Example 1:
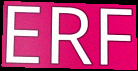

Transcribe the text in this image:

ERF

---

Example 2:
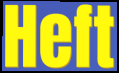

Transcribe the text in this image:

Heft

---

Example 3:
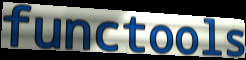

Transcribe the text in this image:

functools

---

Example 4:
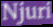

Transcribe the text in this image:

Njuri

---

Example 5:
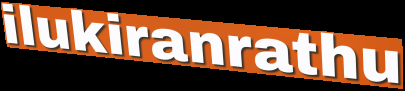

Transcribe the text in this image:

ilukiranrathu